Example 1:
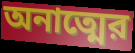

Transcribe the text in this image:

অনাত্মের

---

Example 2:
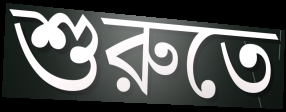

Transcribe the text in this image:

শুরুতে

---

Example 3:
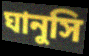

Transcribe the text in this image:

ঘানুসি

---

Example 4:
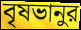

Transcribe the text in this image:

বৃষভানুর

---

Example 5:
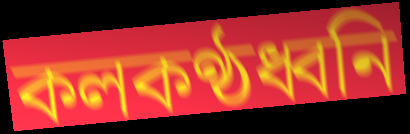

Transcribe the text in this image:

কলকণ্ঠধ্বনি